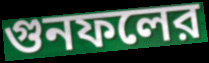
গুনফলের